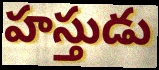
హస్తుడు